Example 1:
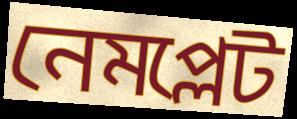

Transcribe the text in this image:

নেমপ্লেট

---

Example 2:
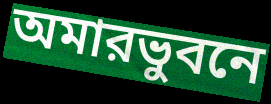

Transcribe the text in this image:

অমারভুবনে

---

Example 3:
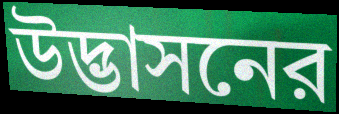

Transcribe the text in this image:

উদ্ভাসনের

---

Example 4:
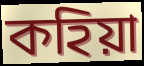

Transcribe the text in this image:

কহিয়া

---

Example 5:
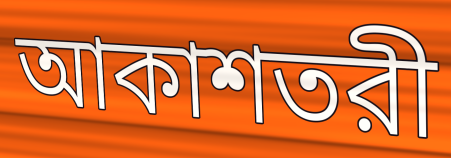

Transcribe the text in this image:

আকাশতরী